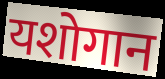
यशोगान